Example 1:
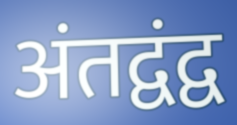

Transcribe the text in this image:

अंतद्वंद्व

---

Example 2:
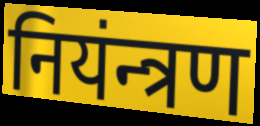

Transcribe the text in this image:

नियंन्त्रण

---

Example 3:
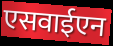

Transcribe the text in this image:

एसवाईएन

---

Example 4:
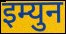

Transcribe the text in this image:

इम्युन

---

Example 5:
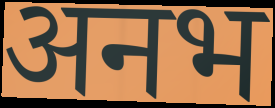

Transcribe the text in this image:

अनभ